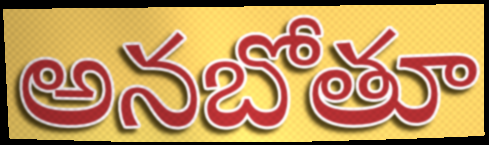
అనబోతూ